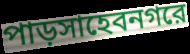
পাড়সাহেবনগরে